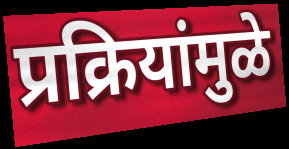
प्रक्रियांमुळे